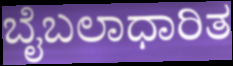
ಬೈಬಲಾಧಾರಿತ